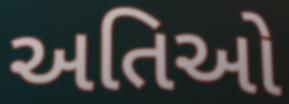
અતિઓ